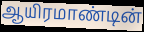
ஆயிரமாண்டின்